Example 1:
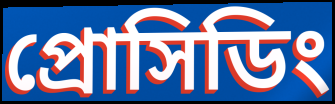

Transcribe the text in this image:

প্রোসিডিং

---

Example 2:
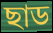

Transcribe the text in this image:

ছাড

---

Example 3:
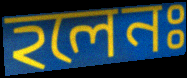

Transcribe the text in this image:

হলেনঃ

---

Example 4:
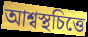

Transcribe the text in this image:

আশ্বস্থচিত্তে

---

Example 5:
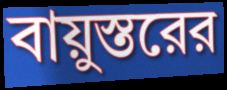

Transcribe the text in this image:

বায়ুস্তরের